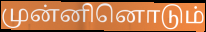
முன்னினொடும்